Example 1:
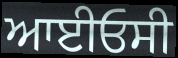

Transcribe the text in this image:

ਆਈਓਸੀ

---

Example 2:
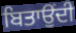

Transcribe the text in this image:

ਬਿਤਾਉਂਦੀ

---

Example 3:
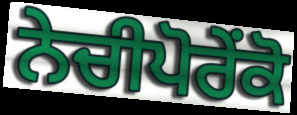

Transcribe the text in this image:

ਨੇਚੀਪੋਰੇਂਕੋ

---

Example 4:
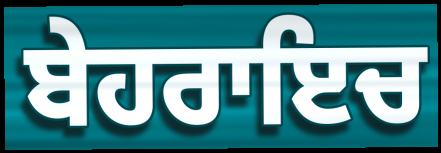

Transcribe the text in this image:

ਬੇਹਰਾਇਚ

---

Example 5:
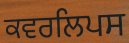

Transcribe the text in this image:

ਕਵਰਲਿਪਸ